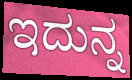
ಇದುನ್ನ